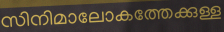
സിനിമാലോകത്തേക്കുള്ള